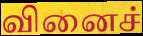
வினைச்